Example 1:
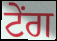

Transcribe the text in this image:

ਟੇਂਗ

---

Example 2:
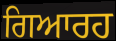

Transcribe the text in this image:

ਗਿਆਰਹ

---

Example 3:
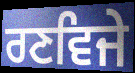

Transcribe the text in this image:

ਰਣਵਿਜੇ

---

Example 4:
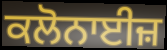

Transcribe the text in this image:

ਕਲੋਨਾਈਜ਼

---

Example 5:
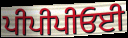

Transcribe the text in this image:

ਪੀਪੀਪੀਓਈ